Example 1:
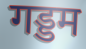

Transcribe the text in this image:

गड्डम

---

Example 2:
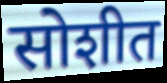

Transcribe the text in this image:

सोशीत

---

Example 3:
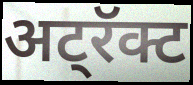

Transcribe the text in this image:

अट्रॅक्ट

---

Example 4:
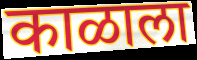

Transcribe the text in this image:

काळाला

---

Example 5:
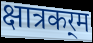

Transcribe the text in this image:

क्षात्रकर्म